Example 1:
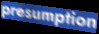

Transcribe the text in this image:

presumption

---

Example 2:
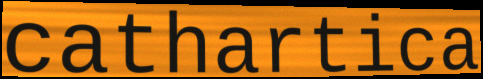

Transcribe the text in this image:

cathartica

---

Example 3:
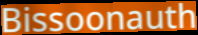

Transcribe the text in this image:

Bissoonauth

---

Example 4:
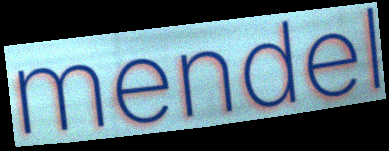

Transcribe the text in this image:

mendel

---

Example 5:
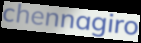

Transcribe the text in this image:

chennagiro